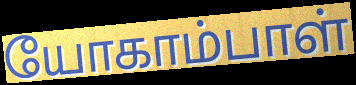
யோகாம்பாள்